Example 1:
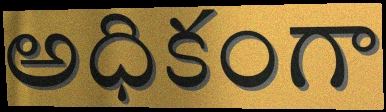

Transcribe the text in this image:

అధికంగా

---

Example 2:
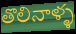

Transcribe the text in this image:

తొలినాళ్ళ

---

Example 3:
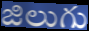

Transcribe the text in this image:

జిలుగు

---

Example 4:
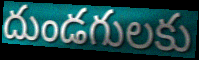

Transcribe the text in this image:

దుండగులకు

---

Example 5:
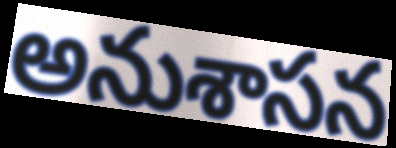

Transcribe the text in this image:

అనుశాసన